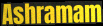
Ashramam